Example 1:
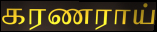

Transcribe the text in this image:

கரணராய்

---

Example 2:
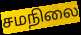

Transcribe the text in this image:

சமநிலை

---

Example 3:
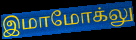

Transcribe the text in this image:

இமாமோக்லு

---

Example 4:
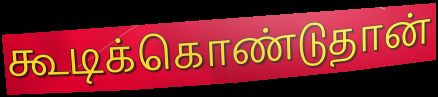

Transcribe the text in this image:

கூடிக்கொண்டுதான்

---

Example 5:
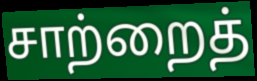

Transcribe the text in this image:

சாற்றைத்